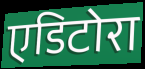
एडिटोरा